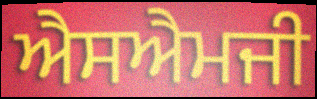
ਐਸਐਮਜੀ